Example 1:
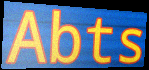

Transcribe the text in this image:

Abts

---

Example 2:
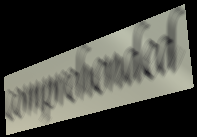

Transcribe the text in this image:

comprehended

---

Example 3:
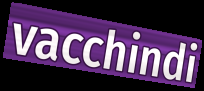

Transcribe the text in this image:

vacchindi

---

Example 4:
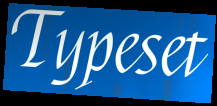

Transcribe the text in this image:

Typeset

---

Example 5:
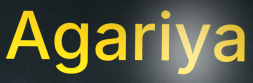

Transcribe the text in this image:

Agariya